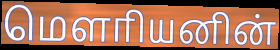
மௌரியனின்